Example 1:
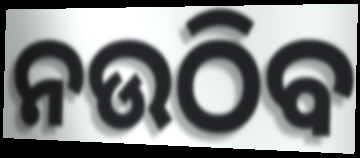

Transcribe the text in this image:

ନଉଠିବ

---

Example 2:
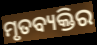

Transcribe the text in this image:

ମୃତବ୍ୟକ୍ତିର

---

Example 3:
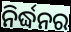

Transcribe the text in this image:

ନିର୍ଦ୍ଧନର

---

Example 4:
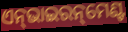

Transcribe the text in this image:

ଏନ୍‌ଭାଇରନ୍‌ମେଣ୍ଟ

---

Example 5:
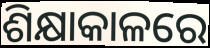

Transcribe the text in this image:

ଶିକ୍ଷାକାଳରେ